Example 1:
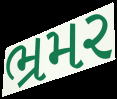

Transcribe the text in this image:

ભ્રમર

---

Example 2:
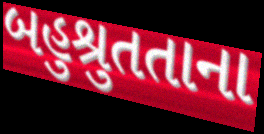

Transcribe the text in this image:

બહુશ્રુતતાના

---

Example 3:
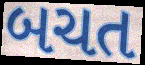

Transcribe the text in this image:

બચત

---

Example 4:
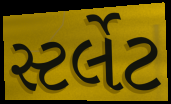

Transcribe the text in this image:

સ્ટર્લેટ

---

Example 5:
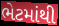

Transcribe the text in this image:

ભેટમાંથી